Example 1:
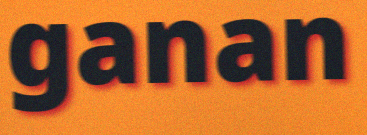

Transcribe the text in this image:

ganan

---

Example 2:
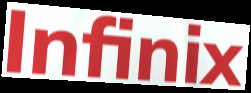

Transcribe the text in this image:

Infinix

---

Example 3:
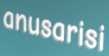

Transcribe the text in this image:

anusarisi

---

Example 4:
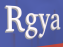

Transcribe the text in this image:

Rgya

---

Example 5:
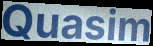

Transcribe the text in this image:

Quasim